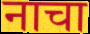
नाचा